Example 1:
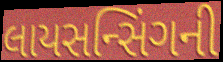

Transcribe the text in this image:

લાયસન્સિંગની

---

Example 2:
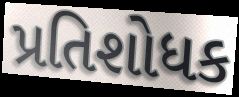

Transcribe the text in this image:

પ્રતિશોધક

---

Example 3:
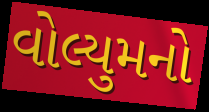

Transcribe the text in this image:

વોલ્યુમનો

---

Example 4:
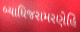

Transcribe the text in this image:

બ્યાધિજરામરણેહિ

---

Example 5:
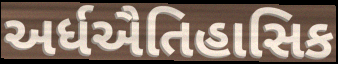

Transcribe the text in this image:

અર્ધઐતિહાસિક